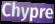
Chypre